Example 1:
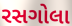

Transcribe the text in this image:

રસગોલા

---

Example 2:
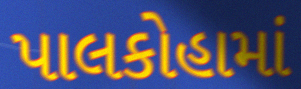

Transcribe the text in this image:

પાલકોહામાં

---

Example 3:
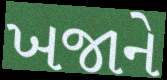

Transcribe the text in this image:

ખજાને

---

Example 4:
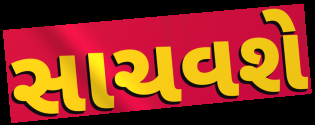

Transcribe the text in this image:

સાચવશે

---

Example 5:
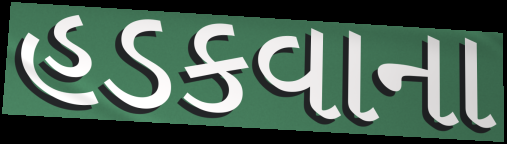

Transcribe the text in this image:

હડકવાના